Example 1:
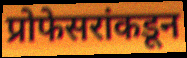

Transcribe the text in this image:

प्रोफेसरांकडून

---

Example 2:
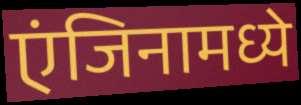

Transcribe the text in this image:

एंजिनामध्ये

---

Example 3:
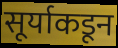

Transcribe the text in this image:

सूर्याकडून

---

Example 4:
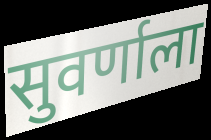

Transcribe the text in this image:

सुवर्णाला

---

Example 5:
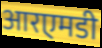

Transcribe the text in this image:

आरएमडी